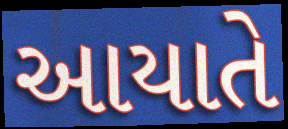
આયાતે